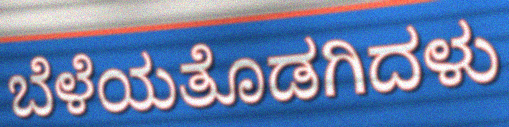
ಬೆಳೆಯತೊಡಗಿದಳು